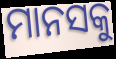
ମାନସକୁ